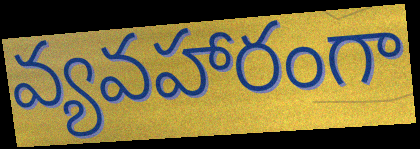
వ్యవహారంగా